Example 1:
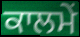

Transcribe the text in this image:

ਕਾਲਮੇਂ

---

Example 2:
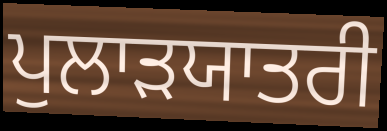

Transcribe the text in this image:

ਪੁਲਾੜਯਾਤਰੀ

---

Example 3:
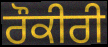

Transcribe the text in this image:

ਰੌਕੀਰੀ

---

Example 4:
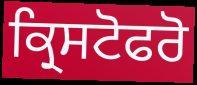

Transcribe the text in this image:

ਕ੍ਰਿਸਟੋਫਰੋ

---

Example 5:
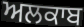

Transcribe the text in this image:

ਅਲਕਾਬ